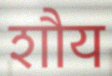
शौय